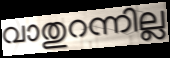
വാതുറന്നില്ല